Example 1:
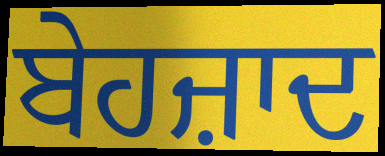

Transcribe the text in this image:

ਬੇਹਜ਼ਾਦ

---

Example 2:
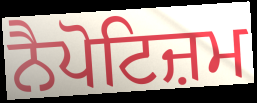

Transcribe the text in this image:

ਨੈਪੋਟਿਜ਼ਮ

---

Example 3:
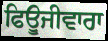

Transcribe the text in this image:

ਫਿਊਜੀਵਾਰਾ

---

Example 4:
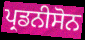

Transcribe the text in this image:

ਪ੍ਰਡਨੀਸੋਨ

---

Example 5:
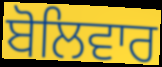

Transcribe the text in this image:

ਬੋਲਿਵਾਰ